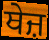
ਥੇਜ਼